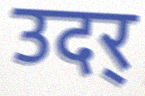
उदर्